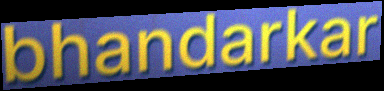
bhandarkar